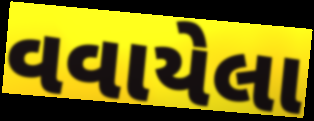
વવાયેલા